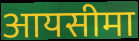
आयसीमा